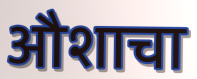
औशाचा